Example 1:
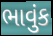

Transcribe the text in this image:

ભાવુંક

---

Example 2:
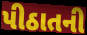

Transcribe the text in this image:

પીઠાતની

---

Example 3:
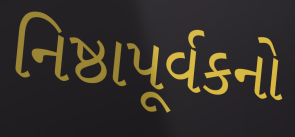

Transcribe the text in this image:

નિષ્ઠાપૂર્વકનો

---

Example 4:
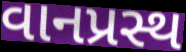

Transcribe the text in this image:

વાનપ્રસ્થ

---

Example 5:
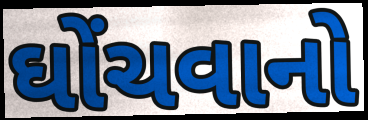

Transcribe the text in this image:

ઘોંચવાનો